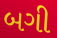
બગી